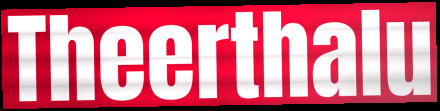
Theerthalu